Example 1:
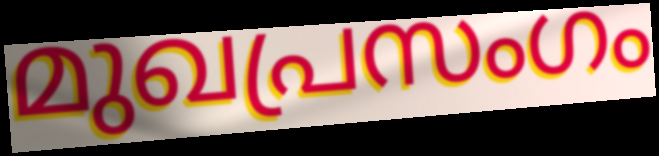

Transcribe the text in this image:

മുഖപ്രസംഗം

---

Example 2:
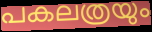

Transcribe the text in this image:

പകലത്രയും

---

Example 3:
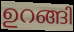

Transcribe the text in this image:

ഉറങ്ങി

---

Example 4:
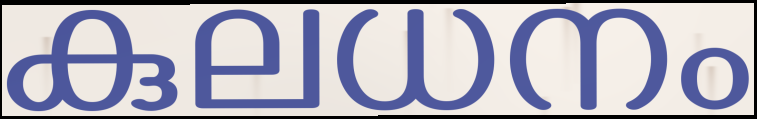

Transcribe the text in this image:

കുലധനം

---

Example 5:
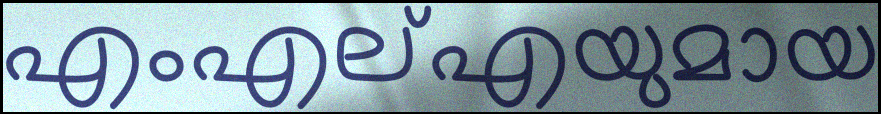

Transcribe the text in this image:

എംഎല്എയുമായ